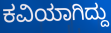
ಕವಿಯಾಗಿದ್ದು